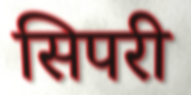
सिपरी